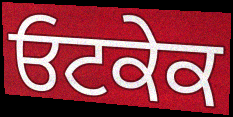
ਓਟਕੇਕ